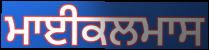
ਮਾਈਕਲਮਾਸ